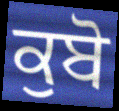
ਕੁਬੋ